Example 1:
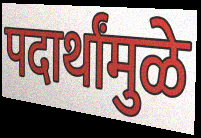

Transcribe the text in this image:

पदार्थांमुळे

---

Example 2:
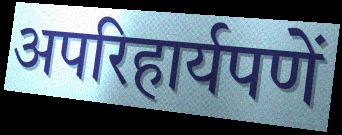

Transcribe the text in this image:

अपरिहार्यपणें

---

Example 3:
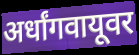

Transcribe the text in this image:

अर्धांगवायूवर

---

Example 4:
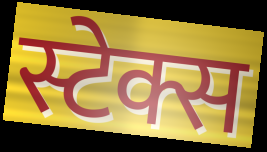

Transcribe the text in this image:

स्टेक्स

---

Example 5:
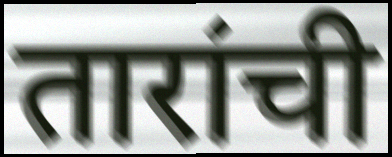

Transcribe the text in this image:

तारांची